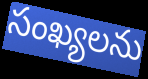
సంఖ్యలను